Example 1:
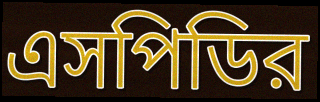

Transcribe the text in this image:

এসপিডির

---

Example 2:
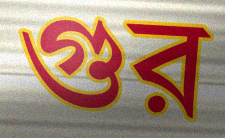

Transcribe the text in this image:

গুর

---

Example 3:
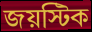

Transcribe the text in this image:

জয়স্টিক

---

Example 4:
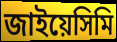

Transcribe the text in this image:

জাইয়েসিমি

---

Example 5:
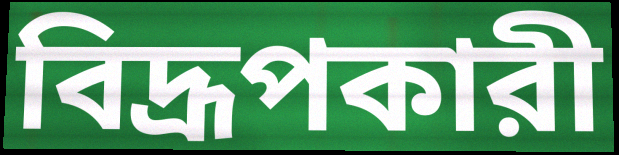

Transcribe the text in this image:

বিদ্রূপকারী